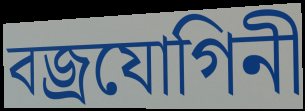
বজ্ৰযোগিনী